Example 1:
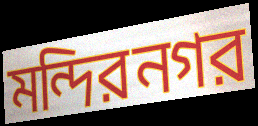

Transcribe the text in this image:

মন্দিরনগর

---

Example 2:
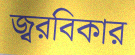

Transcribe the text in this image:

জ্বরবিকার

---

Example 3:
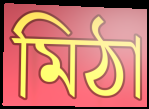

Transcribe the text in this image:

মিঠা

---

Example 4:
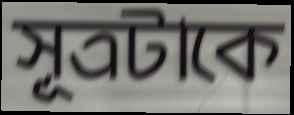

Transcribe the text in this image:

সূত্রটাকে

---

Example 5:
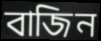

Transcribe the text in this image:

বাজিন